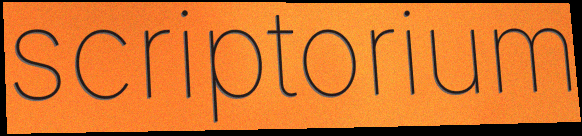
scriptorium